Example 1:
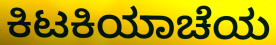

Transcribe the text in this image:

ಕಿಟಕಿಯಾಚೆಯ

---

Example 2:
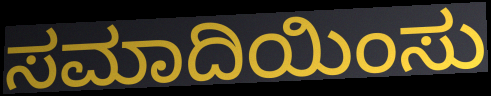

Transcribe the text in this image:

ಸಮಾದಿಯಿಂಸು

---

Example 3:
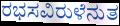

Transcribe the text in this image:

ರಭಸವಿರುಳೆನುತ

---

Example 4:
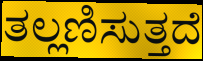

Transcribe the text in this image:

ತಲ್ಲಣಿಸುತ್ತದೆ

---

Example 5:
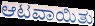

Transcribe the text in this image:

ಆಟವಾಯಿತು